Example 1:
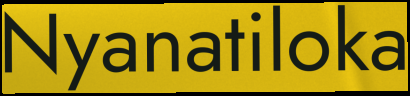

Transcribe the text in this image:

Nyanatiloka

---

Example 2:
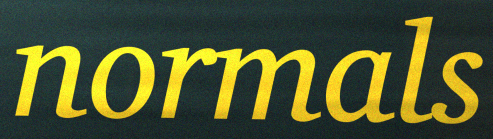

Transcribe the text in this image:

normals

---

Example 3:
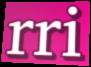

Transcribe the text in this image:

rri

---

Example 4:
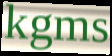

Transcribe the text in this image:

kgms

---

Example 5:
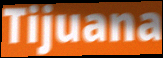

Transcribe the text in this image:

Tijuana